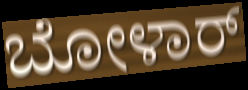
ಬೋಳಾರ್